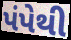
પંપેથી